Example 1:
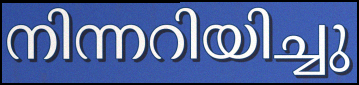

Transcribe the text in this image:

നിന്നറിയിച്ചു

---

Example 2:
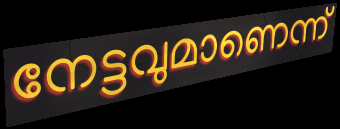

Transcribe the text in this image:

നേട്ടവുമാണെന്ന്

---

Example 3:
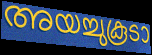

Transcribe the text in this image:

അയച്ചുകൂടാ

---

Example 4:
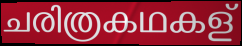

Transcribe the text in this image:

ചരിത്രകഥകള്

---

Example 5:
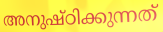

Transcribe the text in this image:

അനുഷ്ഠിക്കുന്നത്